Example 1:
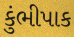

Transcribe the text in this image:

કુંભીપાક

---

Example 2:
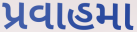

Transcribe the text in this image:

પ્રવાહમા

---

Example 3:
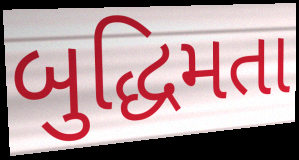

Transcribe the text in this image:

બુદ્ધિમતા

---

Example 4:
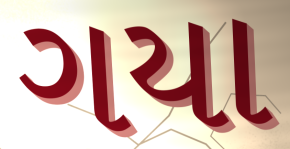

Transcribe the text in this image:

ગયા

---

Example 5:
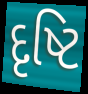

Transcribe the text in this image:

દૃષ્ટિ